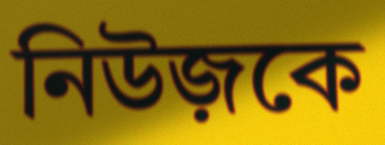
নিউজ়কে